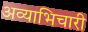
अव्याभिचारी